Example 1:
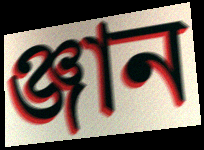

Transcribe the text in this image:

ঞ্জান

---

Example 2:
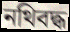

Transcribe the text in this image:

নথিবদ্ধ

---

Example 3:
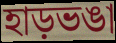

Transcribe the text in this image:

হাড়ভঙা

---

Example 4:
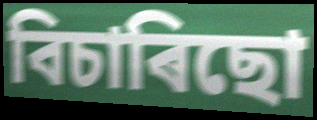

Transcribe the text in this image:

বিচাৰিছো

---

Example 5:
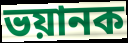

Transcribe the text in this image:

ভয়ানক